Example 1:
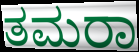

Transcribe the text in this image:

ತಮರಾ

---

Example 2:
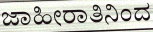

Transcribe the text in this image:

ಜಾಹೀರಾತಿನಿಂದ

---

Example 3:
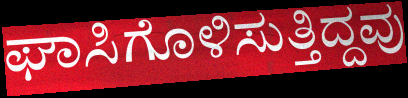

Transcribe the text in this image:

ಘಾಸಿಗೊಳಿಸುತ್ತಿದ್ದವು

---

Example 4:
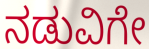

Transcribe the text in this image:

ನಡುವಿಗೇ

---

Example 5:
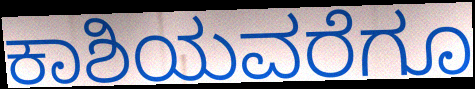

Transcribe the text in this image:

ಕಾಶಿಯವರೆಗೂ